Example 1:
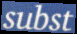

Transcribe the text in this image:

subst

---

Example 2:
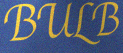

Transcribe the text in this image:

BULB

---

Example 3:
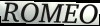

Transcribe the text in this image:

ROMEO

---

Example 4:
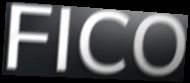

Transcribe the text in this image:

FICO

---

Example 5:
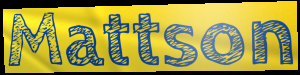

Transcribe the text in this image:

Mattson